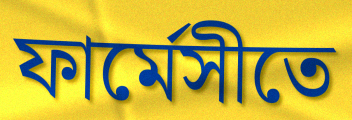
ফার্মেসীতে